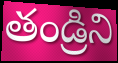
తండ్రిని